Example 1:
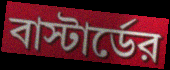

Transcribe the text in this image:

বাস্টার্ডের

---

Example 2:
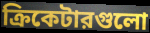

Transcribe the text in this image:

ক্রিকেটারগুলো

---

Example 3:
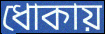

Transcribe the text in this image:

ধোকায়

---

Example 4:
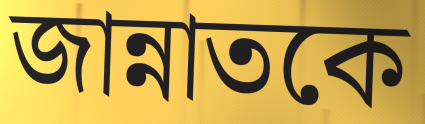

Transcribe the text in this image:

জান্নাতকে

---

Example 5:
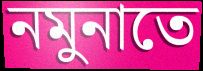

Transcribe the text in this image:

নমুনাতে